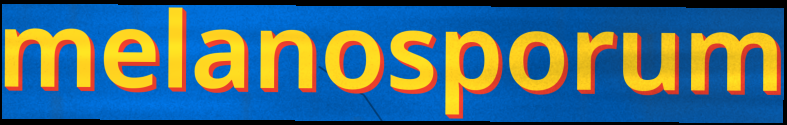
melanosporum